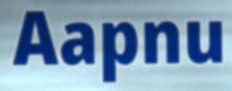
Aapnu